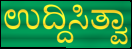
ಉದ್ದಿಸಿತ್ವಾ